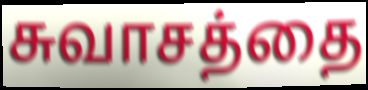
சுவாசத்தை